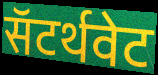
सॅटर्थवेट